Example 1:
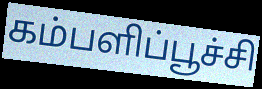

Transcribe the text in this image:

கம்பளிப்பூச்சி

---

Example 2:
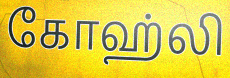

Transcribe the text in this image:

கோஹ்லி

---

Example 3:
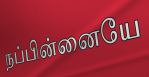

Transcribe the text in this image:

நப்பின்னையே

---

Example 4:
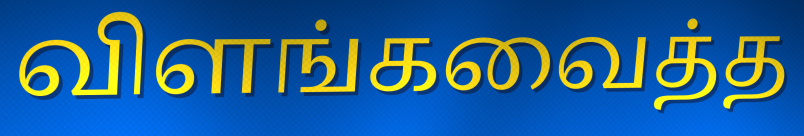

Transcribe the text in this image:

விளங்கவைத்த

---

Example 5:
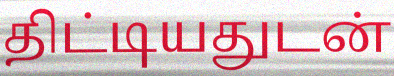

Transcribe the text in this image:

திட்டியதுடன்